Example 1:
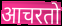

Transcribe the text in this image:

आचरतो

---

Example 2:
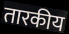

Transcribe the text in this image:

तारकीय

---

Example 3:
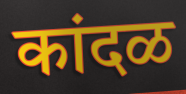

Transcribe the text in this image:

कांदळ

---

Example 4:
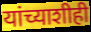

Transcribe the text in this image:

यांच्याशीही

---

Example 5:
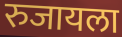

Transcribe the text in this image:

रुजायला